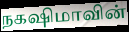
நகஷிமாவின்